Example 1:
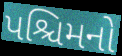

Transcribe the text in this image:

પશ્ચિમનો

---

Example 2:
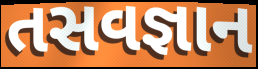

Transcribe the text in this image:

તસવજ્ઞાન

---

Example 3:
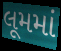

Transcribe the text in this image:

લૂમમાં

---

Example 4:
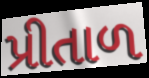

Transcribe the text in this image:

પ્રીતાળ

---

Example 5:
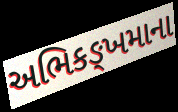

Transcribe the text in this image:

અભિકઙ્ખમાના